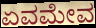
ಏವಮೇವ